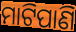
ମାଟିପାଣି